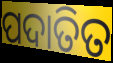
ପଦାତିତ